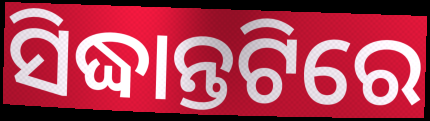
ସିଦ୍ଧାନ୍ତଟିରେ